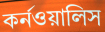
কর্নওয়ালিস